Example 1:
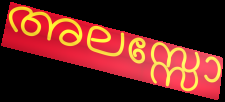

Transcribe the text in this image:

അലസ്സോ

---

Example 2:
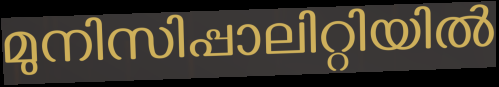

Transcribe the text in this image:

മുനിസിപ്പാലിറ്റിയിൽ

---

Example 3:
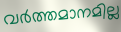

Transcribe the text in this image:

വർത്തമാനമില്ല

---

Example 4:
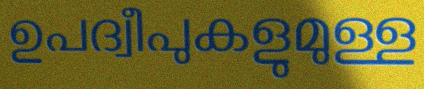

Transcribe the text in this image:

ഉപദ്വീപുകളുമുള്ള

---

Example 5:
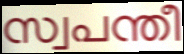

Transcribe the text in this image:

സ്വപന്തീ